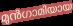
മുൻഗാമിയായ